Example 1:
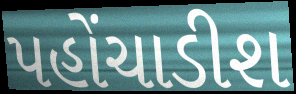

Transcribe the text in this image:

પહોંચાડીશ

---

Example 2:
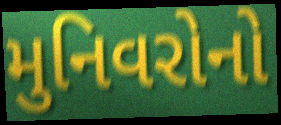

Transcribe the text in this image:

મુનિવરોનો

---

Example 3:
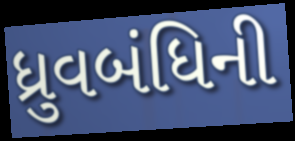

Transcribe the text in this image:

ધ્રુવબંધિની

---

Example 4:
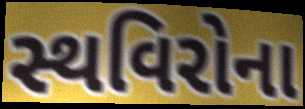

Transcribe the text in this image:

સ્થવિરોના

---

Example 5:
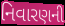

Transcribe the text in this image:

નિવારણની